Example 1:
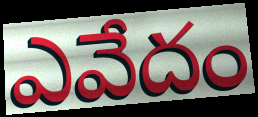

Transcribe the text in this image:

ఎవేదం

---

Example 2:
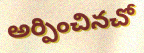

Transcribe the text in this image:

అర్పించినచో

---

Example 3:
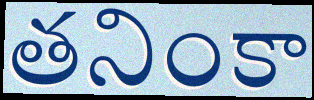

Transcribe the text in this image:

తనింకా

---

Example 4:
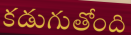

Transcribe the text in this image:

కడుగుతోంది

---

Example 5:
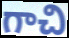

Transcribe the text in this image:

గాచి